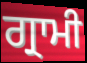
ਗ੍ਰਾਮੀ